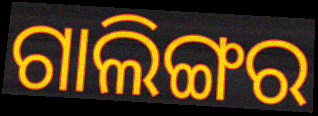
ଗାଲିଙ୍ଗର